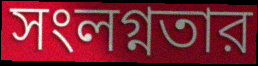
সংলগ্নতার